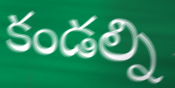
కండల్ని